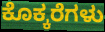
ಕೊಕ್ಕರೆಗಳು